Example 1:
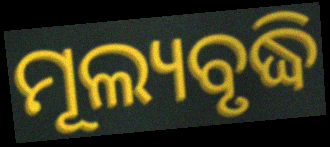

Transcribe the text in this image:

ମୂଲ୍ୟବୃଦ୍ଧି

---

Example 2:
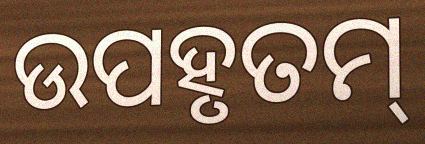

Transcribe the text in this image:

ଉପହୃତମ୍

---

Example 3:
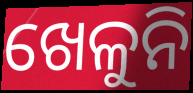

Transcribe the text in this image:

ଖେଳୁନି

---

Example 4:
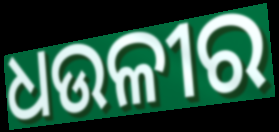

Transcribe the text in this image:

ଧଉଳୀର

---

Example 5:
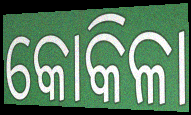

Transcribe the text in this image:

କୋକିଳା